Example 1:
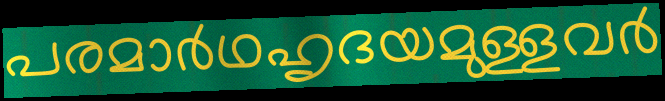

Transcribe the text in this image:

പരമാർഥഹൃദയമുള്ളവർ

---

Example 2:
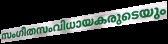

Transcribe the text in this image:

സംഗീതസംവിധായകരുടെയും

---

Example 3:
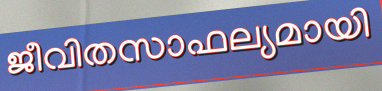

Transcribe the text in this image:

ജീവിതസാഫല്യമായി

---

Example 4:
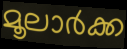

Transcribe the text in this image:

മൂലാർക്ക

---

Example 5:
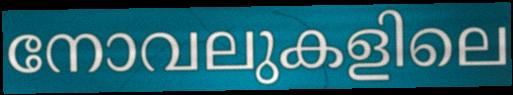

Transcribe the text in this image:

നോവലുകളിലെ